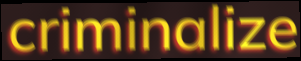
criminalize